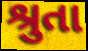
શ્રુતા